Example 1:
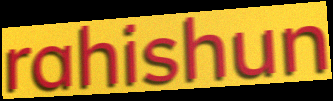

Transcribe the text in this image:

rahishun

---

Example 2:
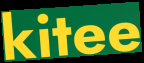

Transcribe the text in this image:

kitee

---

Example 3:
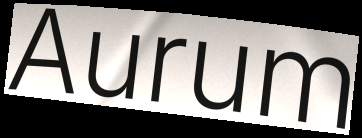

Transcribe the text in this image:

Aurum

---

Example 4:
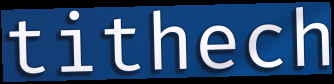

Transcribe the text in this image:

tithech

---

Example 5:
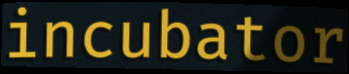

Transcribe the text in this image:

incubator